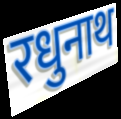
रधुनाथ